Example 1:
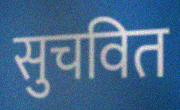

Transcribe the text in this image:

सुचवित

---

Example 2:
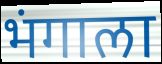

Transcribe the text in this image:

भंगाला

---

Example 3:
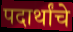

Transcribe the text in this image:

पदार्थांचे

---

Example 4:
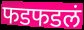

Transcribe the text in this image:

फडफडलं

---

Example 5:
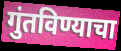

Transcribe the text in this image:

गुंतविण्याचा